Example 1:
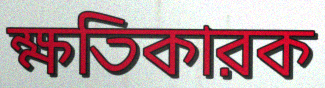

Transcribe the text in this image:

ক্ষতিকারক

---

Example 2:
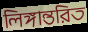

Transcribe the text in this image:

লিঙ্গান্তরিত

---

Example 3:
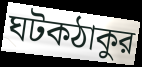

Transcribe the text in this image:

ঘটকঠাকুর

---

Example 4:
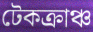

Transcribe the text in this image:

টেকক্রাঞ্চ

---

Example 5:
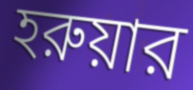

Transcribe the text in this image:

হরুয়ার